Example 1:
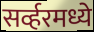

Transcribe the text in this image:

सर्व्हरमध्ये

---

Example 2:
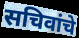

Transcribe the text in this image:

सचिवांचे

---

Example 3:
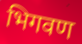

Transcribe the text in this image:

भिगवण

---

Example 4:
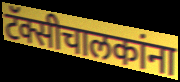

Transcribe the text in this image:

टॅक्सीचालकांना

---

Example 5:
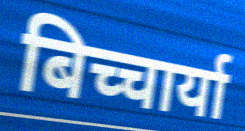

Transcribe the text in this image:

बिच्चार्या